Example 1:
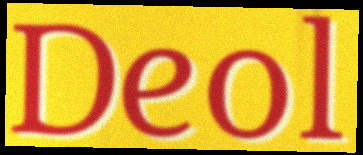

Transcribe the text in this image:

Deol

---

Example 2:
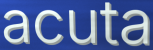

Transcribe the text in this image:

acuta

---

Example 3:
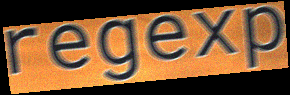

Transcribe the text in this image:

regexp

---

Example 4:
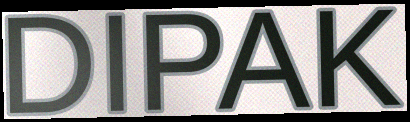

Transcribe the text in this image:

DIPAK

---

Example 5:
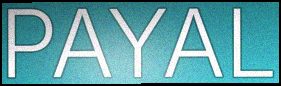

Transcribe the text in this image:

PAYAL